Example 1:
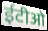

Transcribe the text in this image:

ईटीओ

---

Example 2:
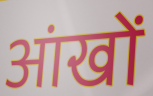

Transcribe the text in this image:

आंखों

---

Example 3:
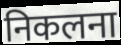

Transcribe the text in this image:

निकलना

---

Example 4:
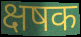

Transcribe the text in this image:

क्षषक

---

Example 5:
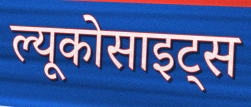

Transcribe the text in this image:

ल्यूकोसाइट्स